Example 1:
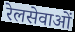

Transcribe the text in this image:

रेलसेवाओं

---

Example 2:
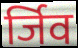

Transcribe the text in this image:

र्जिव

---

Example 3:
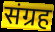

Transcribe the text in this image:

संग्रह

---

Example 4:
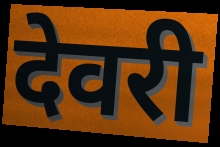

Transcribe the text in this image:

देवरी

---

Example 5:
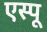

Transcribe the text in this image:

एस्पू